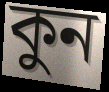
কুন